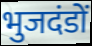
भुजदंडों